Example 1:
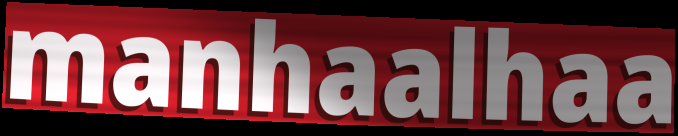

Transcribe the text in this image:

manhaalhaa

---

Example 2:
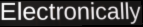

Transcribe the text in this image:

Electronically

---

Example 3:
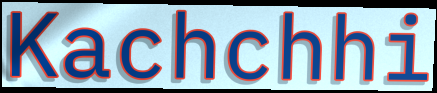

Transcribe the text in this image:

Kachchhi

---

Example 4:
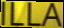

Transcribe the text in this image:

ILLA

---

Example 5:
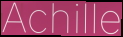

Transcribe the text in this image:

Achille